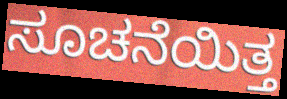
ಸೂಚನೆಯಿತ್ತ